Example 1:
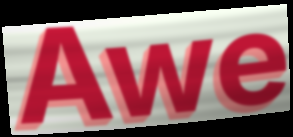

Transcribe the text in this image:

Awe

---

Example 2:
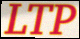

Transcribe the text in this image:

LTP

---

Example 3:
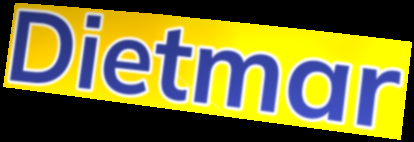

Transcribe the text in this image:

Dietmar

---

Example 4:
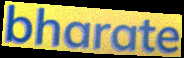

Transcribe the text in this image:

bharate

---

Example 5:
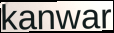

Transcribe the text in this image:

kanwar